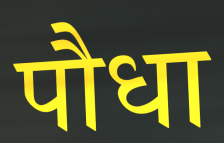
पौधा